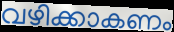
വഴിക്കാകണം